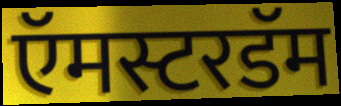
ऍमस्टरडॅम